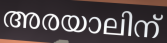
അരയാലിന്